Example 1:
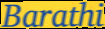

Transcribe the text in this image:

Barathi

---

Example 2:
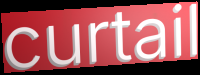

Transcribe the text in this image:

curtail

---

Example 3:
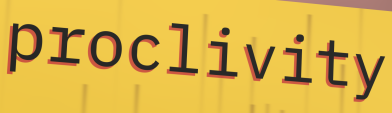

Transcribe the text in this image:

proclivity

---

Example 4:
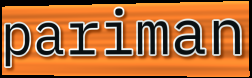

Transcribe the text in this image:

pariman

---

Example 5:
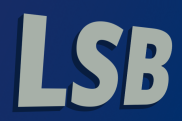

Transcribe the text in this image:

LSB